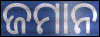
ଜମାନ